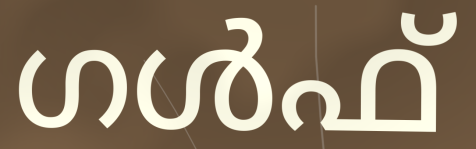
ഗൾഫ്